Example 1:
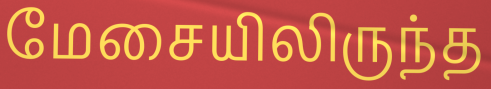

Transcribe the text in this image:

மேசையிலிருந்த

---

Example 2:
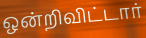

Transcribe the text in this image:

ஒன்றிவிட்டார்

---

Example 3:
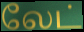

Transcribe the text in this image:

லேட்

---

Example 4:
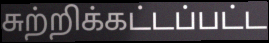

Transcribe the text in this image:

சுற்றிக்கட்டப்பட்ட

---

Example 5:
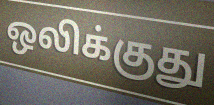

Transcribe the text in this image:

ஒலிக்குது